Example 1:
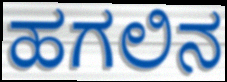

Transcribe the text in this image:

ಹಗಲಿನ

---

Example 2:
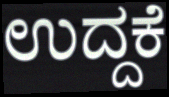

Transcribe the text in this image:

ಉದ್ದಕೆ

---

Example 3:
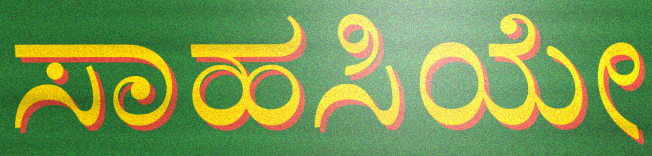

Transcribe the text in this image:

ಸಾಹಸಿಯೇ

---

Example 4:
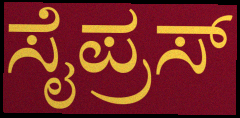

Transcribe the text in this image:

ಸೈಪ್ರಸ್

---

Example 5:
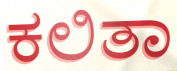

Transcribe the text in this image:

ಕಲಿತಾ